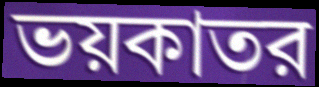
ভয়কাতর